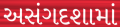
અસંગદશામાં